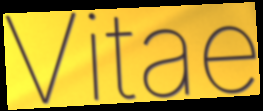
Vitae